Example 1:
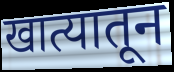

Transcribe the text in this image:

खात्यातून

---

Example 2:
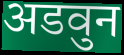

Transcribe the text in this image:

अडवुन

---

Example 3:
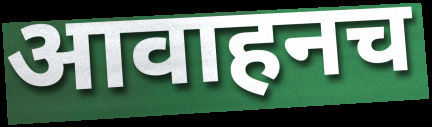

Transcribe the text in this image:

आवाहनच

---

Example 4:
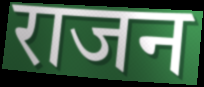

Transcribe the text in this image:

राजन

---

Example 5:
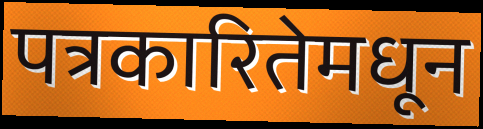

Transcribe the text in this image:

पत्रकारितेमधून